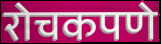
रोचकपणे